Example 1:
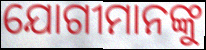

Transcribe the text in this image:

ଯୋଗୀମାନଙ୍କୁ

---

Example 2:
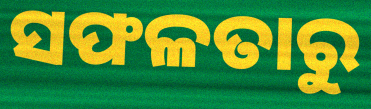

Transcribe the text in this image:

ସଫଳତାରୁ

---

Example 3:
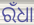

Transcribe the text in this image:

ରଁଧା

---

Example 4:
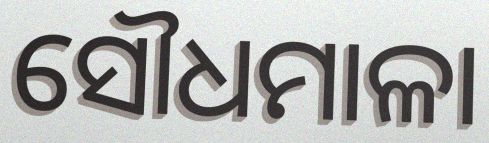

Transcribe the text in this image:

ସୌଧମାଳା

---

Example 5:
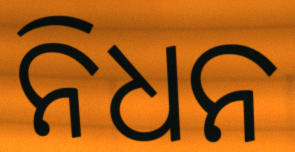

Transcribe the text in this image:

ନିଧନ